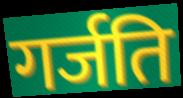
गर्जति